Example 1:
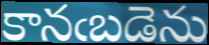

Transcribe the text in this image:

కానఁబడెను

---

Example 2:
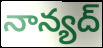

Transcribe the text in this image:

నాన్యద్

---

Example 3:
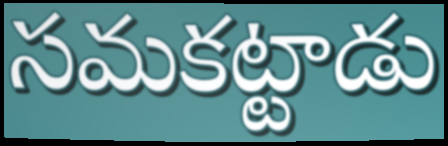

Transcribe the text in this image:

సమకట్టాడు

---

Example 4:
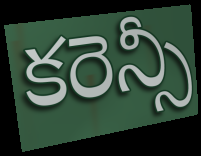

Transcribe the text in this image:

కరెన్సీ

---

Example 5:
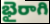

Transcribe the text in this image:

భైరాగి